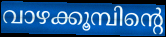
വാഴക്കൂമ്പിന്റെ